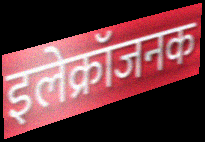
इलेक्रॉजनक